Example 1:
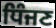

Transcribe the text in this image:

ਧਿੰਜਣ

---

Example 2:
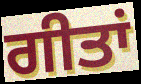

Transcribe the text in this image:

ਗੀਤਾਂ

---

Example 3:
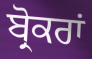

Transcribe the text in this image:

ਬ੍ਰੋਕਰਾਂ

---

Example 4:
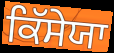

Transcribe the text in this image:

ਕਿੱਸੇਯਾ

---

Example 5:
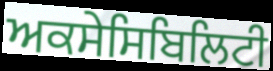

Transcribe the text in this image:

ਅਕਸੇਸਿਬਿਲਿਟੀ